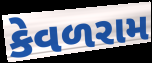
કેવળરામ